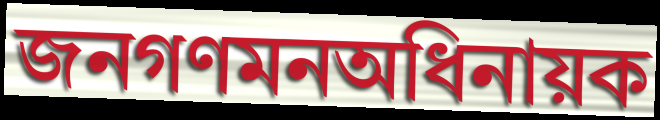
জনগণমনঅধিনায়ক